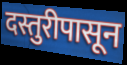
दस्तुरीपासून